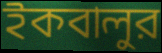
ইকবালুর